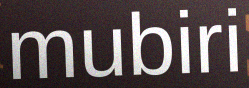
mubiri